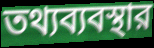
তথ্যব্যবস্থার